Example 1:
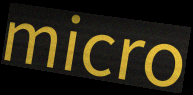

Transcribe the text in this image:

micro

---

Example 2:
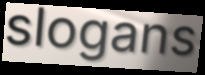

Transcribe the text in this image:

slogans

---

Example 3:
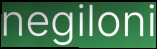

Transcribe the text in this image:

negiloni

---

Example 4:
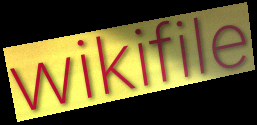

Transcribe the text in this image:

wikifile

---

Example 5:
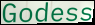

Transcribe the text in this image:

Godess